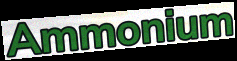
Ammonium